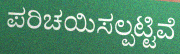
ಪರಿಚಯಿಸಲ್ಪಟ್ಟಿವೆ